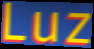
Luz